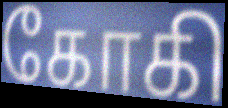
கோகி